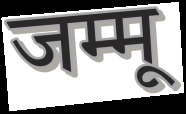
जम्‍मू